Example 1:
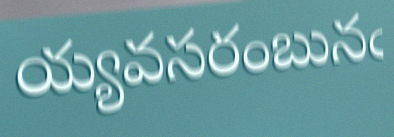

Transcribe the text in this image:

య్యవసరంబునఁ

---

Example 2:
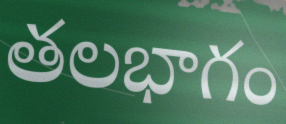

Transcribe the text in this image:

తలభాగం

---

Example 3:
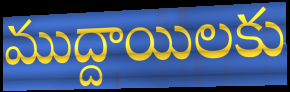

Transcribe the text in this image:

ముద్దాయిలకు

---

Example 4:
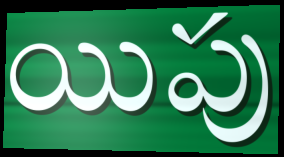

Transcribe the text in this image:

యిపు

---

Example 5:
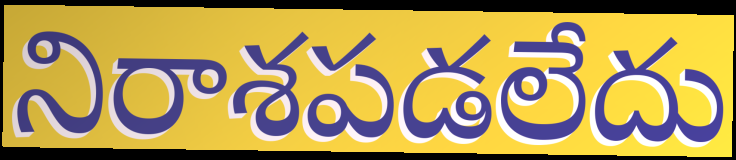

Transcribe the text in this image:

నిరాశపడలేదు